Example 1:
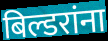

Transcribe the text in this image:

बिल्डरांना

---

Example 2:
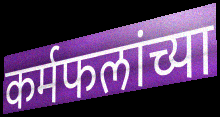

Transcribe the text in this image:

कर्मफलांच्या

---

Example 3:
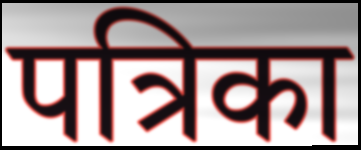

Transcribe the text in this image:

पत्रिका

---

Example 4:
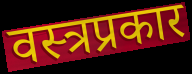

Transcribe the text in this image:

वस्त्रप्रकार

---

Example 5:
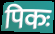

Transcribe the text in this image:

पिकः